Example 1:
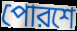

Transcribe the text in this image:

পোরশে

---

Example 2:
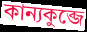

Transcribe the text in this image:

কান্যকুব্জে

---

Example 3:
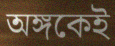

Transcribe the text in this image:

অঙ্গকেই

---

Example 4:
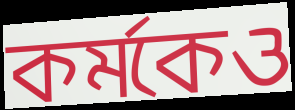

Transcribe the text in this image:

কর্মকেও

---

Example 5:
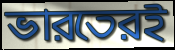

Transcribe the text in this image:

ভারতেরই